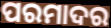
ପରମାଦର